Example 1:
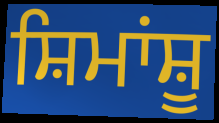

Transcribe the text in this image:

ਸ਼ਿਮਾਂਸ਼ੂ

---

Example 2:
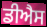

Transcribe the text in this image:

ਡੀਐਸ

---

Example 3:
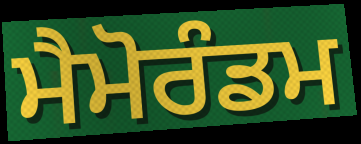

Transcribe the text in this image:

ਮੈਮੋਰੰਡਮ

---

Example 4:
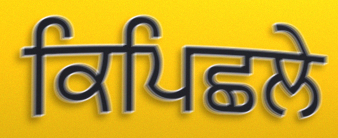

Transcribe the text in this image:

ਕਿਪਿਛਲੇ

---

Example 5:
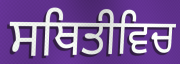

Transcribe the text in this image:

ਸਥਿਤੀਵਿਚ